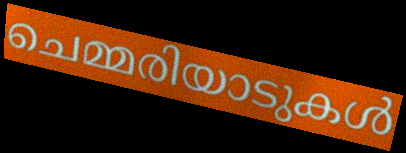
ചെമ്മരിയാടുകൾ